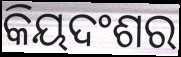
କିୟଦଂଶର